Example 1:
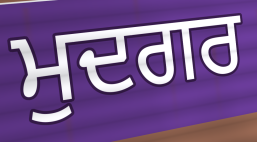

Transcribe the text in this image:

ਮੁਦਗਰ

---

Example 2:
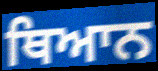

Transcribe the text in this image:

ਥਿਆਨ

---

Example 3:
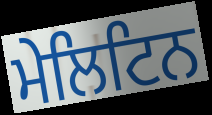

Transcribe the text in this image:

ਮੇਲਿਟਿਨ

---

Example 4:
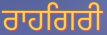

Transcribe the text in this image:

ਰਾਹਗਿਰੀ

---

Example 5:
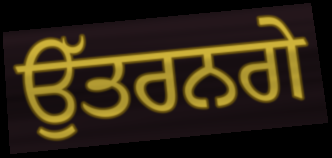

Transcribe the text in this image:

ਉੱਤਰਨਗੇ